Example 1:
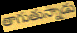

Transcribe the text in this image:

తాగుతున్నాడు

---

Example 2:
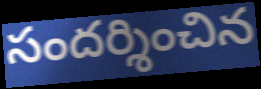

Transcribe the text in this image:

సందర్శించిన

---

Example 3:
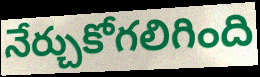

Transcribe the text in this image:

నేర్చుకోగలిగింది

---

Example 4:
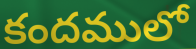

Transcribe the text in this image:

కందములో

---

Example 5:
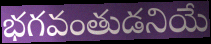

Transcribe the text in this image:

భగవంతుడనియే